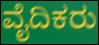
ವೈದಿಕರು